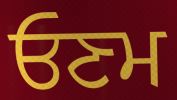
ਓਣਮ